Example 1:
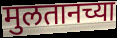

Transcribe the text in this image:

मुलतानच्या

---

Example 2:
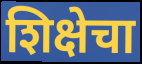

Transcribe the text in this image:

शिक्षेचा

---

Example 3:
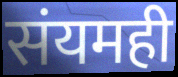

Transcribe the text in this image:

संयमही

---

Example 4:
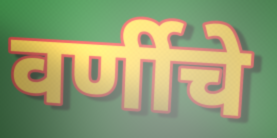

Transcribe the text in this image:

वर्णीचे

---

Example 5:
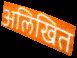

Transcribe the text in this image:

अलिखित